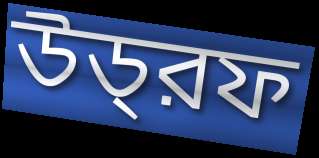
উড্‌রফ